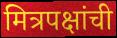
मित्रपक्षांची